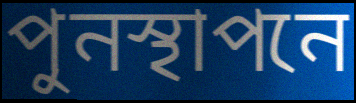
পুনস্থাপনে